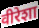
वीरेशा